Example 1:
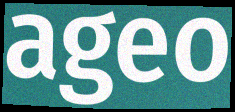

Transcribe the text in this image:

ageo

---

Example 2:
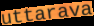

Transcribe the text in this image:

uttarava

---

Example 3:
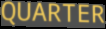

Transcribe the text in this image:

QUARTER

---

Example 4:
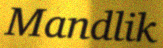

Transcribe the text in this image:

Mandlik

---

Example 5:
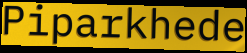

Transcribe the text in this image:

Piparkhede